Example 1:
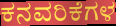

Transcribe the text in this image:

ಕನವರಿಕೆಗಳ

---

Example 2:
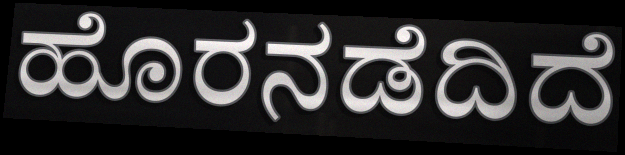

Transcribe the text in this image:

ಹೊರನಡೆದಿದೆ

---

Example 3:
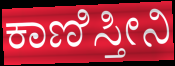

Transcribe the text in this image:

ಕಾಣಿಸ್ತೀನಿ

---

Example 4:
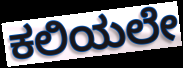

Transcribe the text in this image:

ಕಲಿಯಲೇ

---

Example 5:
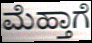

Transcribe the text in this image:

ಮೆಹ್ತಾಗೆ